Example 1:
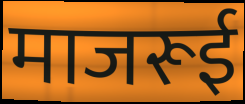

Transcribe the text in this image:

माजरूई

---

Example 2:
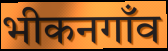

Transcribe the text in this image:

भीकनगाँव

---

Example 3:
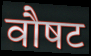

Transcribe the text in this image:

वौषट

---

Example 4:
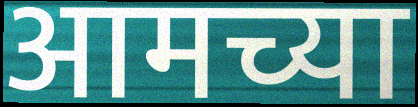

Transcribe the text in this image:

आमच्या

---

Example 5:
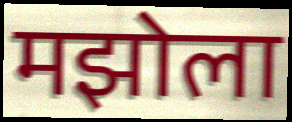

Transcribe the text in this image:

मझोला